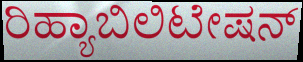
ರಿಹ್ಯಾಬಿಲಿಟೇಷನ್